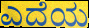
ಎದೆಯ